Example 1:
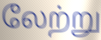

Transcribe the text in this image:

லேற்று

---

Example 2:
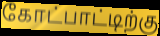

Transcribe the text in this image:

கோட்பாட்டிற்கு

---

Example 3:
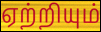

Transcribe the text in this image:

ஏற்றியும்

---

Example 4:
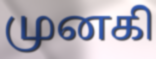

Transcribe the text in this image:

முனகி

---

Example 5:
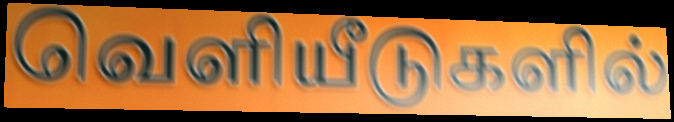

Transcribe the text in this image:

வெளியீடுகளில்